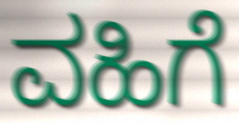
ವಹಿಗೆ